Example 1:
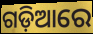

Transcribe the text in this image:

ଗଡ଼ିଆରେ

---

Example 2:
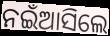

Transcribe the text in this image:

ନଇଁଆସିଲେ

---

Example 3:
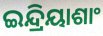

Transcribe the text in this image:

ଇନ୍ଦ୍ରିୟାଶାଂ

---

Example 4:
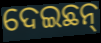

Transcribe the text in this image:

ଦେଇଛନ୍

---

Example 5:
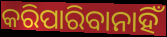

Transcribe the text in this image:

କରିପାରିବାନାହିଁ